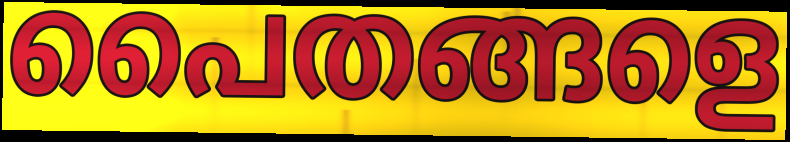
പൈതങ്ങളെ